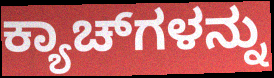
ಕ್ಯಾಚ್‌ಗಳನ್ನು